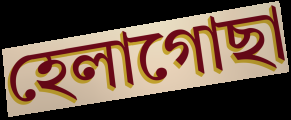
হেলাগোছা